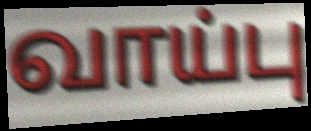
வாய்பு